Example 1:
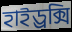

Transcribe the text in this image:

হাইড্রক্সি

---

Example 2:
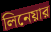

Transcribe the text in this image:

লিনেয়ার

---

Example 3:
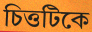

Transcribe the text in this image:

চিত্তটিকে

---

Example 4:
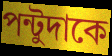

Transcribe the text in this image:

পন্টুদাকে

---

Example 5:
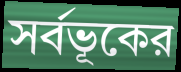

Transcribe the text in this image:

সর্বভূকের